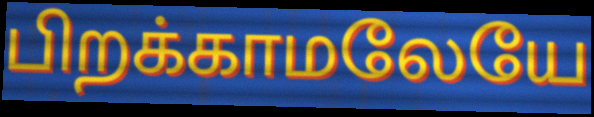
பிறக்காமலேயே